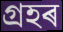
গ্ৰহৰ